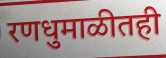
रणधुमाळीतही